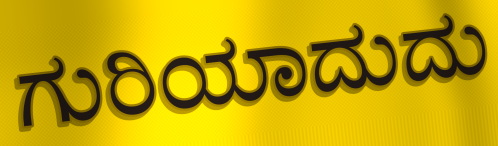
ಗುರಿಯಾದುದು